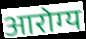
आरोग्य